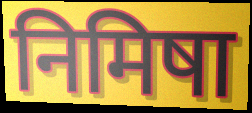
निमिषा